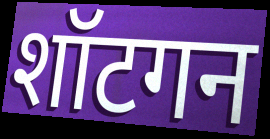
शॉटगन